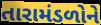
તારામંડળોને